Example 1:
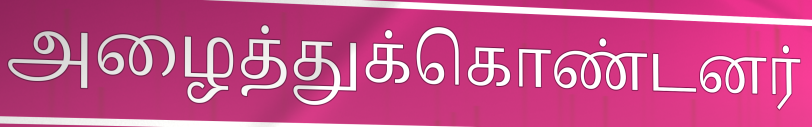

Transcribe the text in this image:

அழைத்துக்கொண்டனர்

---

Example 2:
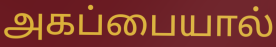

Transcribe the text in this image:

அகப்பையால்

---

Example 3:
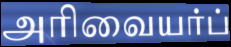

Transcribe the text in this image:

அரிவையர்ப்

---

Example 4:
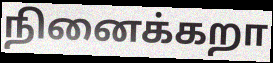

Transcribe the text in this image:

நினைக்கறா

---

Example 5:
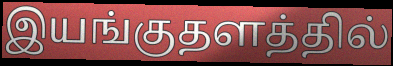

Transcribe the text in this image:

இயங்குதளத்தில்